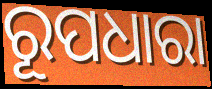
ରୂପଧାରା